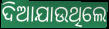
ଦିଆଯାଉଥିଲେ